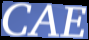
CAE